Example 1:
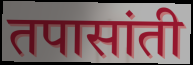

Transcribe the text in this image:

तपासांती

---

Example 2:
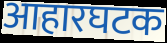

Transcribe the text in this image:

आहारघटक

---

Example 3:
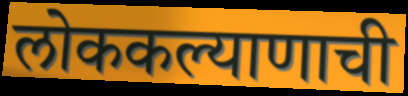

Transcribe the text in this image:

लोककल्याणाची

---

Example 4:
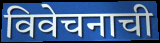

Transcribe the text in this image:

विवेचनाची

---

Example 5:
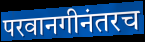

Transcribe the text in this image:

परवानगीनंतरच